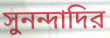
সুনন্দাদির